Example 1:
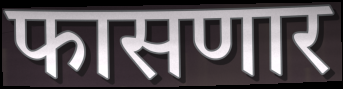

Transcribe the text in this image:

फासणार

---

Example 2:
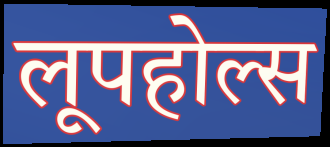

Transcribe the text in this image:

लूपहोल्स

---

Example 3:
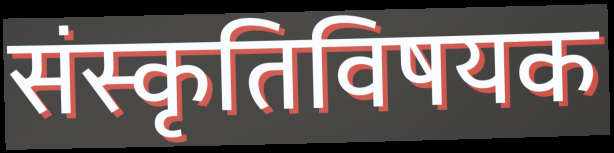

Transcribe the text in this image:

संस्कृतिविषयक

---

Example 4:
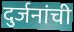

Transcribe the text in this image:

दुर्जनांची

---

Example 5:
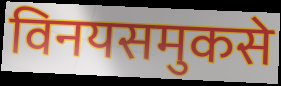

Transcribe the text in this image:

विनयसमुकसे